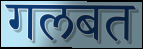
गलबत